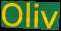
Oliv